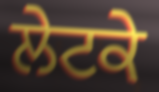
ਲੇਟਕੇ